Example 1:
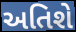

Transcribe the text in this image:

અતિશે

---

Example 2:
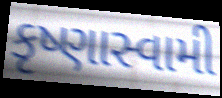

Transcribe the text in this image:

કૃષ્ણાસ્વામી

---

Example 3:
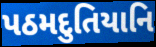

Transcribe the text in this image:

પઠમદુતિયાનિ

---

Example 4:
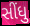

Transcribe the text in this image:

સીંધુ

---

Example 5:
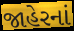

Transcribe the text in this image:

જાહેરનાં